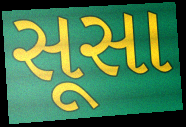
સૂસા